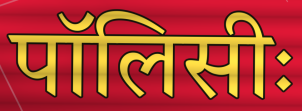
पॉलिसीः